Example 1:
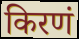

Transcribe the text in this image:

किरणं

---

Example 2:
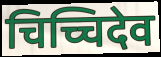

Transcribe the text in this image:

चिच्चिदेव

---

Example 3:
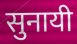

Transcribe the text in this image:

सुनायी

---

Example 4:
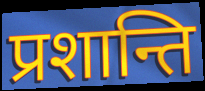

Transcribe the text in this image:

प्रशान्ति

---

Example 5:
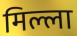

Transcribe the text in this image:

मिल्ला